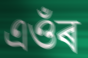
এওঁৰ